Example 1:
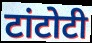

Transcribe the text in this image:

टांटोटी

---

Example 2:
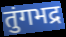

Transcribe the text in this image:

तुंगभद्र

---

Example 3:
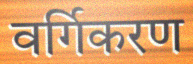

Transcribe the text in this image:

वर्गिकरण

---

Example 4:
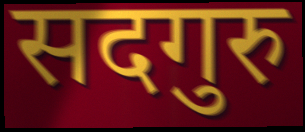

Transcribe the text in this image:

सदगुरु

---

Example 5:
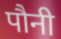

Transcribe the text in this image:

पौनी